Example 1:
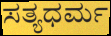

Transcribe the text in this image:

ಸತ್ಯಧರ್ಮ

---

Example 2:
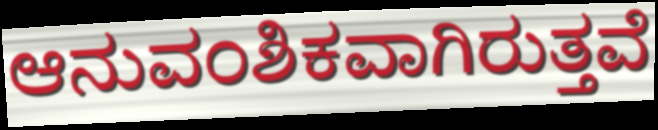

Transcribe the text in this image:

ಆನುವಂಶಿಕವಾಗಿರುತ್ತವೆ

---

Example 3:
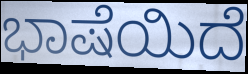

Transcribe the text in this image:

ಭಾಷೆಯಿದೆ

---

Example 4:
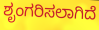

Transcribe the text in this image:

ಶೃಂಗರಿಸಲಾಗಿದೆ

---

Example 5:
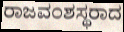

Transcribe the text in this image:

ರಾಜವಂಶಸ್ಥರಾದ